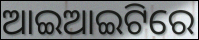
ଆଇଆଇଟିରେ